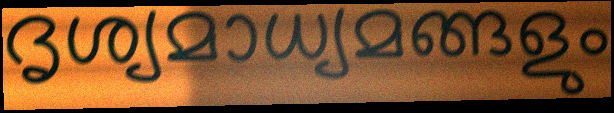
ദൃശ്യമാധ്യമങ്ങളും